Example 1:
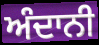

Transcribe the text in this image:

ਅੰਦਾਨੀ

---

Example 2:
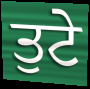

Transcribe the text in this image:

ਤੁਟੇ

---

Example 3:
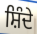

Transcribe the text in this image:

ਸ਼ਿੰਦੇ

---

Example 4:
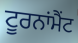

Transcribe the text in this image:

ਟੂਰਨਾਂਮੈਂਟ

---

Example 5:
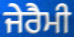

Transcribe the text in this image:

ਜੇਰੈਮੀ